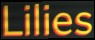
Lilies